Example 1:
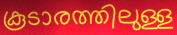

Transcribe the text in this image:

കൂടാരത്തിലുള്ള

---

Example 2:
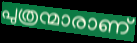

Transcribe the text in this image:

പുത്രന്മാരാണ്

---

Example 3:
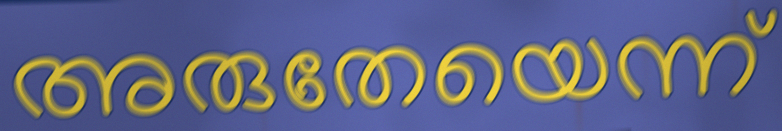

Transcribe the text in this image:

അരുതേയെന്ന്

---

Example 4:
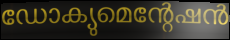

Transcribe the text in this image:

ഡോക്യുമെന്റേഷൻ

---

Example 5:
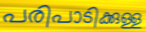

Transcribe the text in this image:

പരിപാടിക്കുള്ള